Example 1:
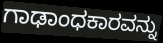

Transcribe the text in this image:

ಗಾಢಾಂಧಕಾರವನ್ನು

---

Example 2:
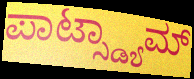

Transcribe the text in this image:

ಪಾಟ್ಸ್ಡ್ಯಾಮ್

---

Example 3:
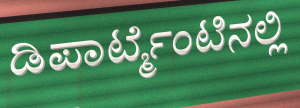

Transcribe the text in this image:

ಡಿಪಾರ್ಟ್ಮೆಂಟಿನಲ್ಲಿ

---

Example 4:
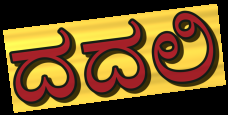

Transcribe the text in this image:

ದದಲಿ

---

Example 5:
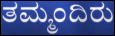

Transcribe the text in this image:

ತಮ್ಮಂದಿರು